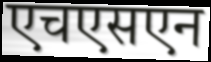
एचएसएन